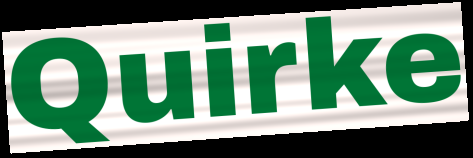
Quirke